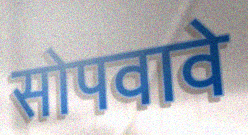
सोपवावे